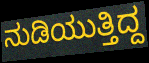
ನುಡಿಯುತ್ತಿದ್ದ